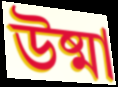
উষ্মা